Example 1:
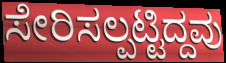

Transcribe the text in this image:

ಸೇರಿಸಲ್ಪಟ್ಟಿದ್ದವು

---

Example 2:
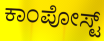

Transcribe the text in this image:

ಕಾಂಪೋಸ್ಟ್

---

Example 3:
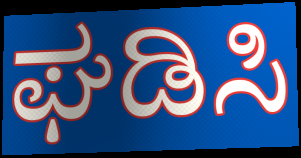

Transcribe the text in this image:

ಘಡಿಸಿ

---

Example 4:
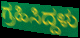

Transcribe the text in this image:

ಗ್ರಹಿಸಿದ್ದಳು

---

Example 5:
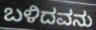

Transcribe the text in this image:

ಬಳಿದವನು